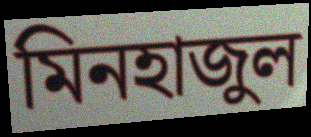
মিনহাজুল